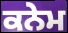
ਕਨੇਮ